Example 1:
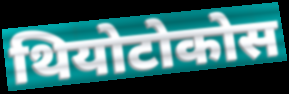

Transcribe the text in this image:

थियोटोकोस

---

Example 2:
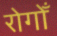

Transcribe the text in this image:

रोगोँ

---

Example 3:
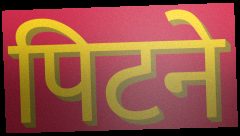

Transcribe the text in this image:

पिटने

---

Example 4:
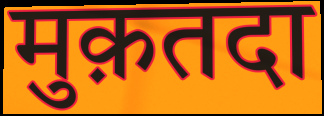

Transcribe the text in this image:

मुक़तदा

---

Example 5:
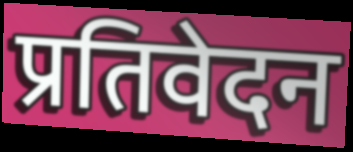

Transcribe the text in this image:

प्रतिवेदन